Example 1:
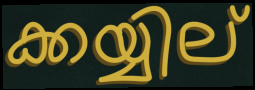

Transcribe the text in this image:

ക്കയ്യില്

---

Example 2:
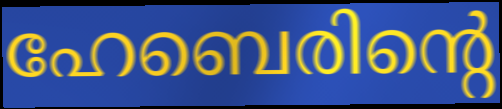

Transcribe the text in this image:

ഹേബെരിന്റെ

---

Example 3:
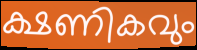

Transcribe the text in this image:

ക്ഷണികവും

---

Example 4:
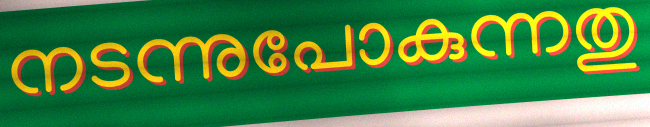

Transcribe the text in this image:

നടന്നുപോകുന്നതു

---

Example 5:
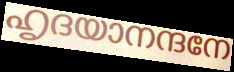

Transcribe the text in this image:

ഹൃദയാനന്ദനേ